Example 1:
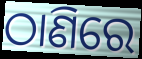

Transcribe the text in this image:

ଠାଣିରେ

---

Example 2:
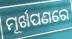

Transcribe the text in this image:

ମୂର୍ଖପଣରେ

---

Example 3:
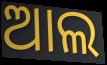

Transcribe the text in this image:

ଆଲ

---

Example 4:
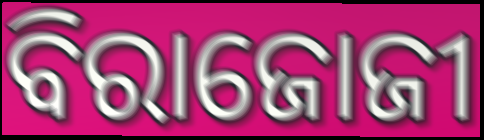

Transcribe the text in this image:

ବିରାଜୋଜୀ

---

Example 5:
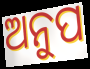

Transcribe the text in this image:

ଅନୁପ